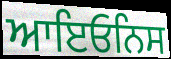
ਆਇਓਨਿਸ